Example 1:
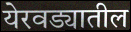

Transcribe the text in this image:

येरवड्यातील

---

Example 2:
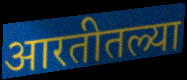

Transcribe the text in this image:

आरतीतल्या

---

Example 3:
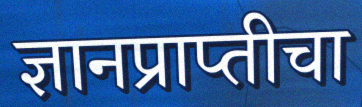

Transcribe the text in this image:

ज्ञानप्राप्तीचा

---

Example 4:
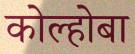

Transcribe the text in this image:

कोल्होबा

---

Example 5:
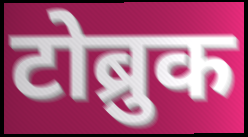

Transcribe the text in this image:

टोब्रुक